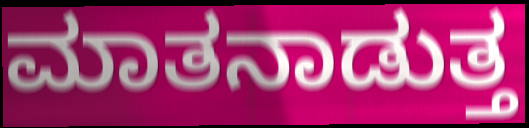
ಮಾತನಾಡುತ್ತ